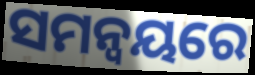
ସମନ୍ବୟରେ